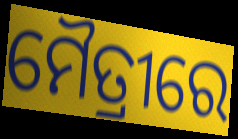
ମୈତ୍ରୀରେ